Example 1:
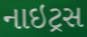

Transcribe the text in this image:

નાઇટ્રસ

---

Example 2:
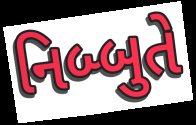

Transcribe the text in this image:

નિબ્બુતે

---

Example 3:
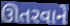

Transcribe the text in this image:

ઊતરવાને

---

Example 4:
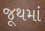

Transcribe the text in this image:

જૂથમાં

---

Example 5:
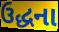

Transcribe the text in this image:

ઉદ્ધના